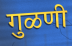
गुळणी